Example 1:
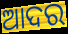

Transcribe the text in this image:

ଆଦର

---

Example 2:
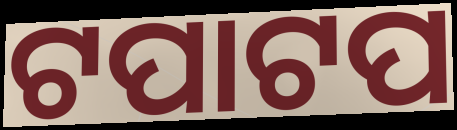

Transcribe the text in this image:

ଟପାଟପ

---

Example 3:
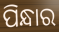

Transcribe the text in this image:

ପିନ୍ଧାର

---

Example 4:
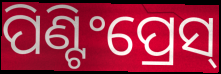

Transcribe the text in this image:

ପିଣ୍ଟିଂପ୍ରେସ୍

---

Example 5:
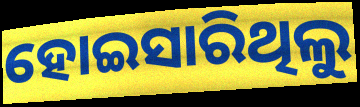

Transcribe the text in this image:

ହୋଇସାରିଥିଲୁ